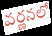
వర్ణనలో